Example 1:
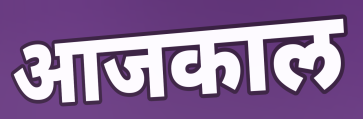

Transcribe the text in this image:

आजकाल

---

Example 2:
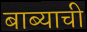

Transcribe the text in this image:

बाब्याची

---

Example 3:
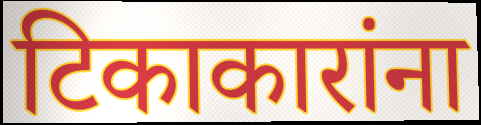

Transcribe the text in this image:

टिकाकारांना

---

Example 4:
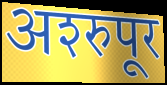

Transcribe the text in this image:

अश्रुपूर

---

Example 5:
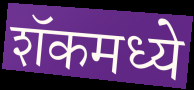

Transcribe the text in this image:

शॅकमध्ये